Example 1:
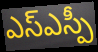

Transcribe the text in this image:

ఎస్ఎస్పీ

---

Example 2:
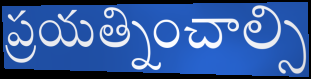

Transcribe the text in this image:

ప్రయత్నించాల్సి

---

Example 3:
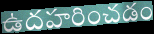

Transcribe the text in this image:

ఉదహరించడం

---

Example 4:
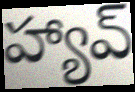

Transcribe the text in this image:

హ్యావ్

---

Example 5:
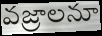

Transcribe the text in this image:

వజ్రాలనూ